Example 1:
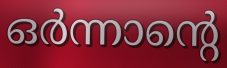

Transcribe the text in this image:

ഒർന്നാന്റെ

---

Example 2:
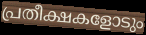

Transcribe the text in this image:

പ്രതീക്ഷകളോടും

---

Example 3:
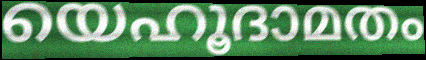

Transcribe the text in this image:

യെഹൂദാമതം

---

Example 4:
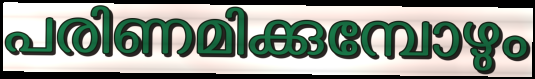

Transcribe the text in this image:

പരിണമിക്കുമ്പോഴും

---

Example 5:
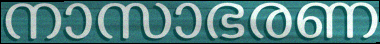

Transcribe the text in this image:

നാസാഭരണ